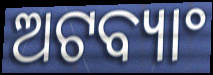
ଅଟବ୍ୟାଂ